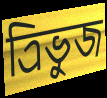
ত্রিভুজ